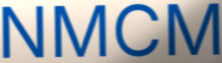
NMCM